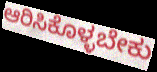
ಆರಿಸಿಕೊಳ್ಳಬೇಕು